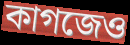
কাগজেও